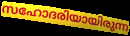
സഹോദരിയായിരുന്ന